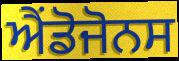
ਐਂਡੋਜੋਨਸ